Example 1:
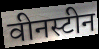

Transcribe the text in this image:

वीनस्टीन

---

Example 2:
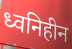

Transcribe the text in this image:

ध्वनिहीन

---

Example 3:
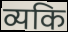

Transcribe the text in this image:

व्यकि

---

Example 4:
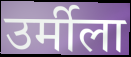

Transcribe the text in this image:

उर्मीला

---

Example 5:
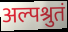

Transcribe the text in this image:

अल्पश्रुतं